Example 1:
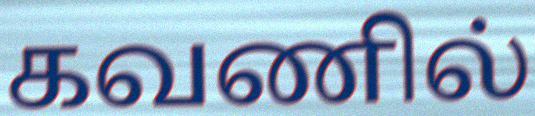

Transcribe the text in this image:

கவணில்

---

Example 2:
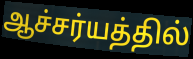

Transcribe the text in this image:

ஆச்சர்யத்தில்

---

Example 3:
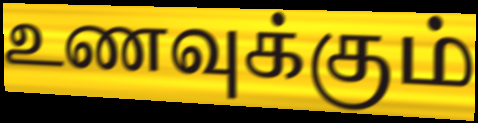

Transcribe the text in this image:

உணவுக்கும்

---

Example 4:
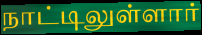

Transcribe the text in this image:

நாட்டிலுள்ளார்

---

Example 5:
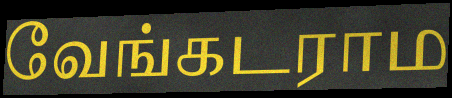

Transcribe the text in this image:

வேங்கடராம